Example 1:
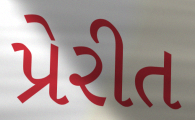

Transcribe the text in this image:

પ્રેરીત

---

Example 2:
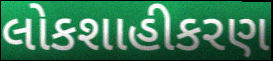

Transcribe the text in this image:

લોકશાહીકરણ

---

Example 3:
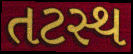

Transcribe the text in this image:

તટસ્થ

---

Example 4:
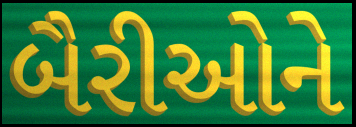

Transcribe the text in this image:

બૈરીઓને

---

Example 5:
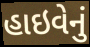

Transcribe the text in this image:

હાઇવેનું